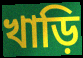
খাড়ি